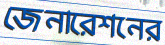
জেনারেশনের